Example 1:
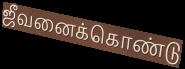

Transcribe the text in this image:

ஜீவனைக்கொண்டு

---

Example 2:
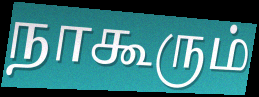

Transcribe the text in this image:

நாகூரும்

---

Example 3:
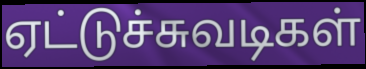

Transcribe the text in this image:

ஏட்டுச்சுவடிகள்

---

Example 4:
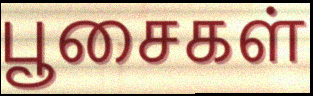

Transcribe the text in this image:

பூசைகள்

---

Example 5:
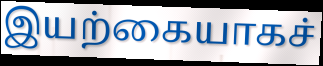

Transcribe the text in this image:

இயற்கையாகச்